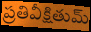
ప్రతివీక్షితుమ్